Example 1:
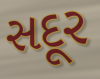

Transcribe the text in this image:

સદૂર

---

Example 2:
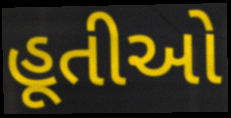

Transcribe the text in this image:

હૂતીઓ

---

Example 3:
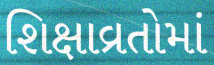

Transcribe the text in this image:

શિક્ષાવ્રતોમાં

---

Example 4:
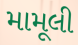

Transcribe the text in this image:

મામૂલી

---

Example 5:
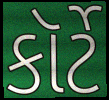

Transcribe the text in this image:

કૉર્ટે